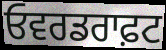
ਓਵਰਡਰਾਫ਼ਟ